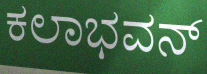
ಕಲಾಭವನ್